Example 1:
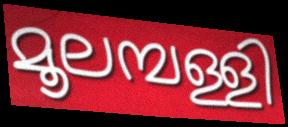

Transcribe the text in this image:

മൂലമ്പള്ളി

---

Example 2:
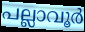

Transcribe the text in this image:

പല്ലാവൂർ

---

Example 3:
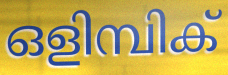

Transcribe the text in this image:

ഒളിമ്പിക്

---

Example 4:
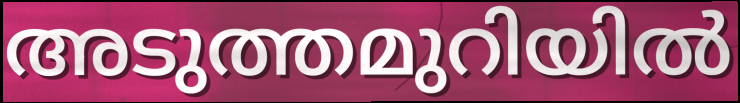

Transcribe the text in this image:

അടുത്തമുറിയിൽ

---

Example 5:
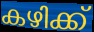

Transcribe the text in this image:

കഴിക്ക്